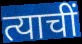
त्याचीं